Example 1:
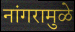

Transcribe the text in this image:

नांगरामुळे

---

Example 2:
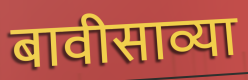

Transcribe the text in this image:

बावीसाव्या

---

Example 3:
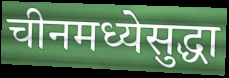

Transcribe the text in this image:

चीनमध्येसुद्धा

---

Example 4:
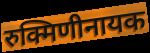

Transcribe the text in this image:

रुक्मिणीनायक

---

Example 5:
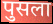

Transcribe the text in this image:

पुसला